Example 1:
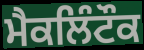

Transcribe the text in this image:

ਮੈਕਲਿੰਟੌਕ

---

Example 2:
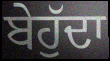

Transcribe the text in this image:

ਬੇਹੁੱਦਾ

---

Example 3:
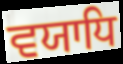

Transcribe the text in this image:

ਵਯਾਧਿ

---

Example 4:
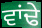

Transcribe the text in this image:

ਵਾਂਢੇ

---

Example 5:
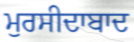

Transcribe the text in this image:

ਮੁਰਸੀਦਾਬਾਦ